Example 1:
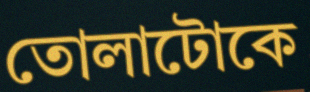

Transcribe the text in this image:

তোলাটোকে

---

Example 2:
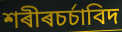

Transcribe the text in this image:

শৰীৰচৰ্চাবিদ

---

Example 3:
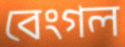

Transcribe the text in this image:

বেংগল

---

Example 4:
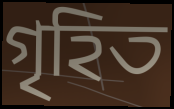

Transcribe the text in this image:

গৃহিত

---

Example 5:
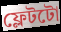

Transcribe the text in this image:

ফ্লেটটো